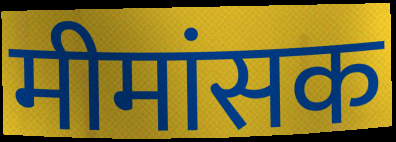
मीमांसक